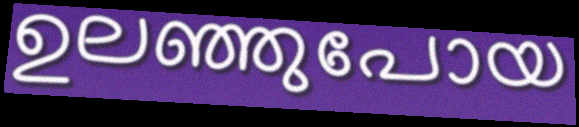
ഉലഞ്ഞുപോയ